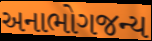
અનાભોગજન્ય